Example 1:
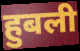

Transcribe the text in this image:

हुबली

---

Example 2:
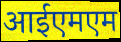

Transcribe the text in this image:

आईएमएम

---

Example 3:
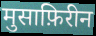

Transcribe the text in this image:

मुसाफ़िरीन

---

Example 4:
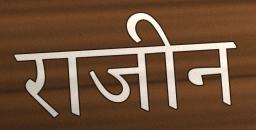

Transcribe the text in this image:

राजीन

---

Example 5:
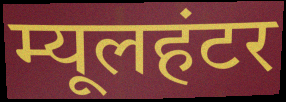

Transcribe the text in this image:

म्यूलहंटर